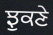
ਝੁਕਣੇ